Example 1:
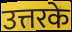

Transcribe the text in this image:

उत्तरके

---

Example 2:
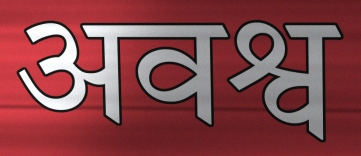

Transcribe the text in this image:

अवश्व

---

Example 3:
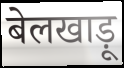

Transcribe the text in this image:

बेलखाड़ू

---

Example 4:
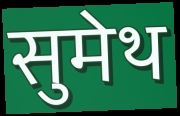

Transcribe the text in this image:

सुमेथ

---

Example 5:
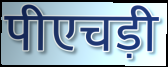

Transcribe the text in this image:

पीएचड़ी